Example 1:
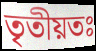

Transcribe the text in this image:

তৃতীয়তঃ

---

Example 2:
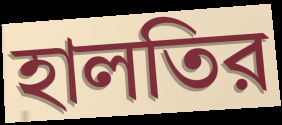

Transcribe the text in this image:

হালতির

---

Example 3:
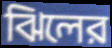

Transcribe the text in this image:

ঝিলের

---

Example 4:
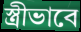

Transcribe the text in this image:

স্ত্রীভাবে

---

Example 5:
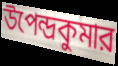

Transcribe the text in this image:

উপেন্দ্রকুমার